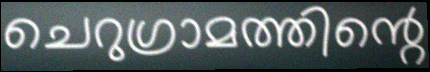
ചെറുഗ്രാമത്തിന്റെ